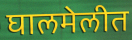
घालमेलीत